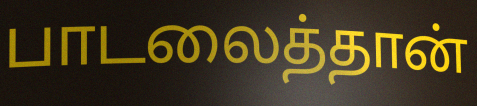
பாடலைத்தான்